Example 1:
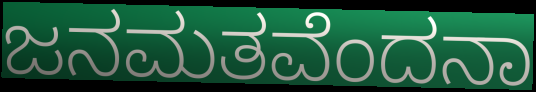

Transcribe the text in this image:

ಜನಮತವೆಂದನಾ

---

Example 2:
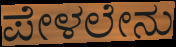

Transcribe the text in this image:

ಪೇಳಲೇನು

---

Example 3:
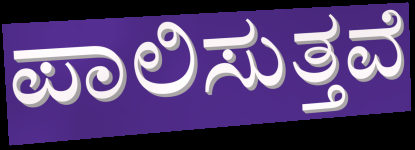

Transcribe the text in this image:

ಪಾಲಿಸುತ್ತವೆ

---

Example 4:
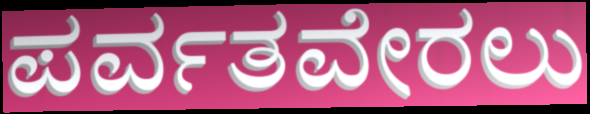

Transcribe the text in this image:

ಪರ್ವತವೇರಲು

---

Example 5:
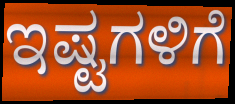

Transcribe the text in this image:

ಇಷ್ಟಗಳಿಗೆ